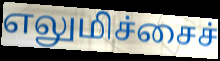
எலுமிச்சைச்